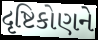
દૃષ્ટિકોણને